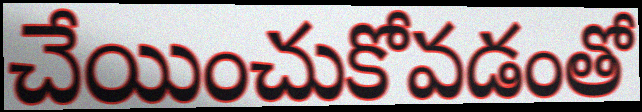
చేయించుకోవడంతో